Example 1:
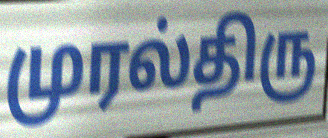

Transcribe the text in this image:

முரல்திரு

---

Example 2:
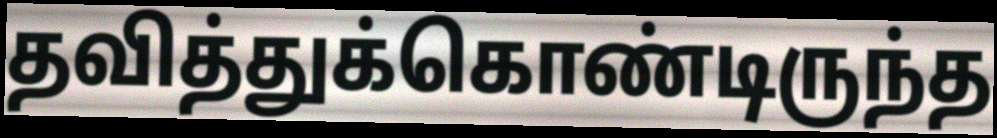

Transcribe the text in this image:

தவித்துக்கொண்டிருந்த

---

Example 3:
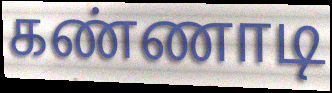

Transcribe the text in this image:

கண்ணாடி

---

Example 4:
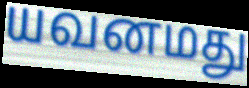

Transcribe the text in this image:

யவனமது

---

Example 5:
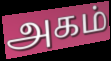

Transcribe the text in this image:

அகம்